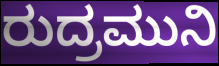
ರುದ್ರಮುನಿ